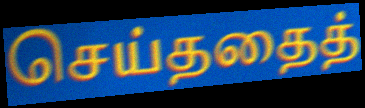
செய்ததைத்